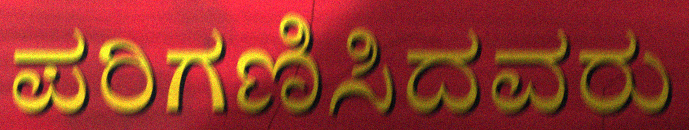
ಪರಿಗಣಿಸಿದವರು